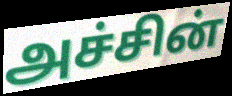
அச்சின்